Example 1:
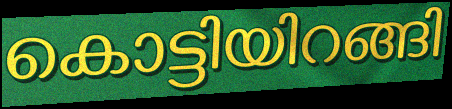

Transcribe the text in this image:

കൊട്ടിയിറങ്ങി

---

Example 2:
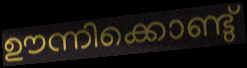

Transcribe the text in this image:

ഊന്നിക്കൊണ്ടു്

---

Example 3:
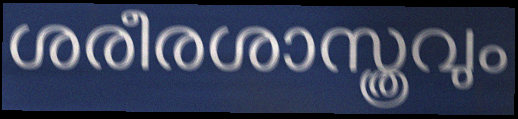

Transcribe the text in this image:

ശരീരശാസ്ത്രവും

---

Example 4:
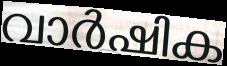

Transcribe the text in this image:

വാർഷിക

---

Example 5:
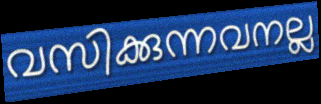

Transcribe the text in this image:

വസിക്കുന്നവനല്ല